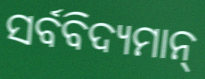
ସର୍ବବିଦ୍ୟମାନ୍